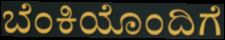
ಬೆಂಕಿಯೊಂದಿಗೆ